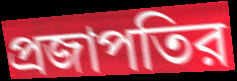
প্রজাপতির